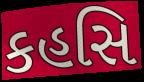
કહસિ